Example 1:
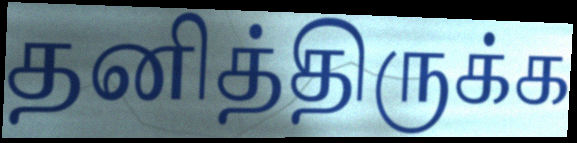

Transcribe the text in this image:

தனித்திருக்க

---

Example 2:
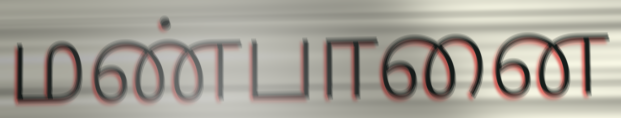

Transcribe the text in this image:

மண்பானை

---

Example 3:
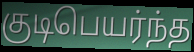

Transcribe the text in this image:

குடிபெயர்ந்த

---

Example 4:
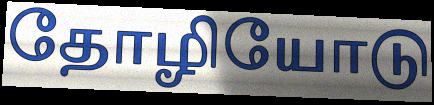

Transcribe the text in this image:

தோழியோடு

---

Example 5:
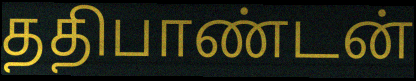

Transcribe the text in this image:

ததிபாண்டன்